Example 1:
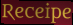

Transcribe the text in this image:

Receipe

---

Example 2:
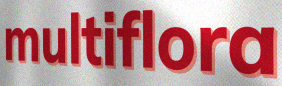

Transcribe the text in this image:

multiflora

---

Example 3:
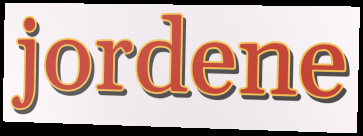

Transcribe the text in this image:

jordene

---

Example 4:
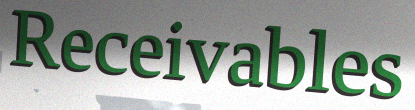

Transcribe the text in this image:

Receivables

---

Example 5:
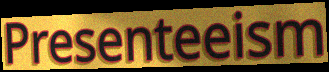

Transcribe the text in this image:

Presenteeism